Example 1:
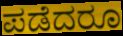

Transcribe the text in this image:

ಪಡೆದರೂ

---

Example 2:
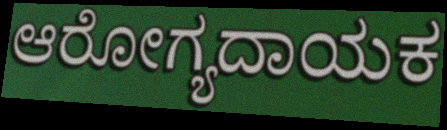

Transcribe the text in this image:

ಆರೋಗ್ಯದಾಯಕ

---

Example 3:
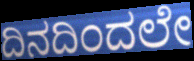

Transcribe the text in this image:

ದಿನದಿಂದಲೇ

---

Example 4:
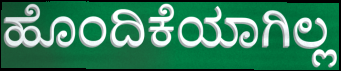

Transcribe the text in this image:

ಹೊಂದಿಕೆಯಾಗಿಲ್ಲ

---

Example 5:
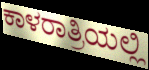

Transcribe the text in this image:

ಕಾಳರಾತ್ರಿಯಲ್ಲಿ